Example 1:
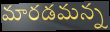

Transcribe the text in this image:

మారడమన్న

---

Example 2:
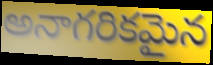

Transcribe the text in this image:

అనాగరికమైన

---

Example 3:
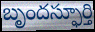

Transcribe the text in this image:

బృందస్ఫూర్తి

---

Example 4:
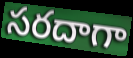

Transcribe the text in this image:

సరదాగా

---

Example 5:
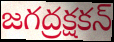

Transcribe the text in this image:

జగద్రక్షకన్